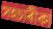
সহচাৰীকা